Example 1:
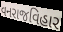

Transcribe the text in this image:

વનરાજવિહાર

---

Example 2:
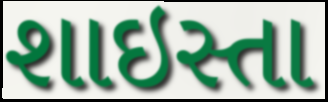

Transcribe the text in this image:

શાઇસ્તા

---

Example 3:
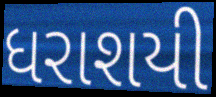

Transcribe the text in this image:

ધરાશયી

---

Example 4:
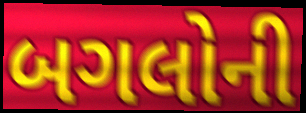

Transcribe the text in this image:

બગલોની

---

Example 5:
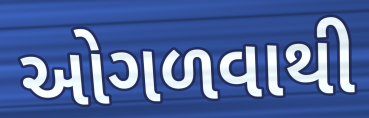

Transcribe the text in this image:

ઓગળવાથી